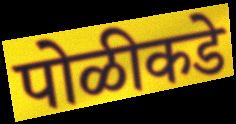
पोळीकडे